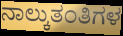
ನಾಲ್ಕುತಂತಿಗಳ